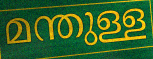
മന്തുള്ള